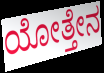
ಯೋತ್ತೇನ